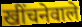
खींचनेवाले